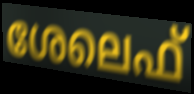
ശേലെഫ്